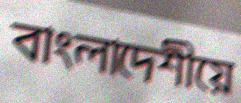
বাংলাদেশীয়ে